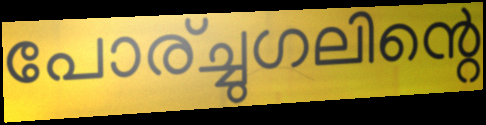
പോര്ച്ചുഗലിന്റെ